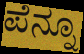
ಪೆನ್ನೂ